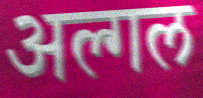
अल्गल